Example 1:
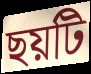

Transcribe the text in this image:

ছয়টি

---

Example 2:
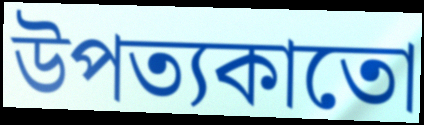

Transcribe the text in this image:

উপত্যকাতো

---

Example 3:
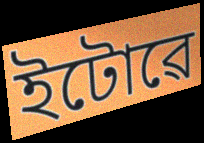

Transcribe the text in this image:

ইটোৱে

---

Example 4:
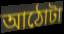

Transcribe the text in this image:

আঠোটা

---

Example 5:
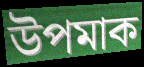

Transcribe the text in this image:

উপমাক